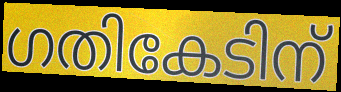
ഗതികേടിന്